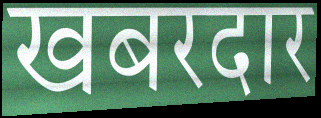
खबरदार